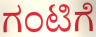
ಗಂಟಿಗೆ